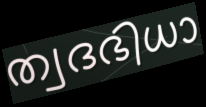
ത്വദഭിധാ